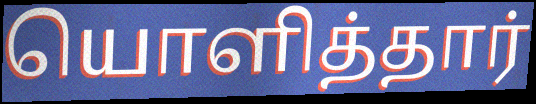
யொளித்தார்